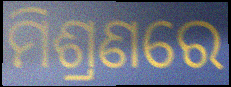
ମିଶ୍ରଣରେ